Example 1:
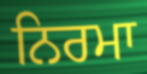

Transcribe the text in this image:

ਨਿਰਮਾ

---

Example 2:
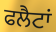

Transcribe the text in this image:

ਫਲੈਟਾਂ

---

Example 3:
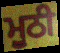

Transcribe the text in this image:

ਮੂਠੀ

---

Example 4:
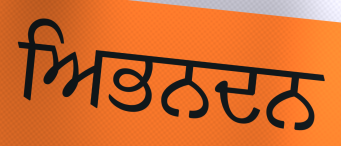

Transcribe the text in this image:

ਅਿਭਨਦਨ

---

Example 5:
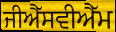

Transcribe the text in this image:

ਜੀਐੱਸਵੀਐੱਮ